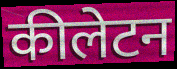
कीलेटन